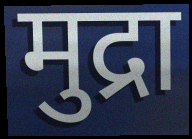
मुद्रा